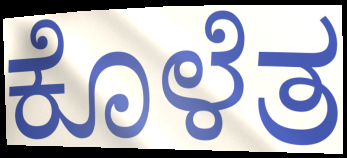
ಕೊಳೆತ